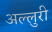
अल्लुरी